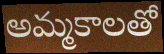
అమ్మకాలతో